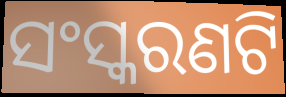
ସଂସ୍କରଣଟି